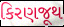
કિરણજૂથ